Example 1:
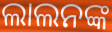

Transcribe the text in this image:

ଲାଲନଙ୍କ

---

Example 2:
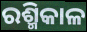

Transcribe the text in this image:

ରଶ୍ମିକାଳ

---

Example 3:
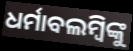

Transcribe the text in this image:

ଧର୍ମାବଲମ୍ବିଙ୍କୁ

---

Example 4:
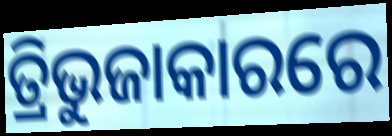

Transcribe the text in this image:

ତ୍ରିଭୁଜାକାରରେ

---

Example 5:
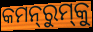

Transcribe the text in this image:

କମନ୍‍ରୁମ୍‍କୁ